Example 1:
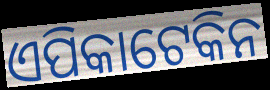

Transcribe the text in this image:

ଏପିକାଟେକିନ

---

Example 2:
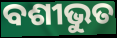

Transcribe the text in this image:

ବଶୀଭୁତ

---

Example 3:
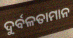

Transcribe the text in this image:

ଦୁର୍ବଳତାମାନ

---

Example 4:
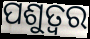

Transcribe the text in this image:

ପଶୁତ୍ୱର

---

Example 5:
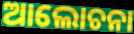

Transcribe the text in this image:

ଆଲୋଚନା